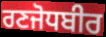
ਰਣਜੋਧਬੀਰ